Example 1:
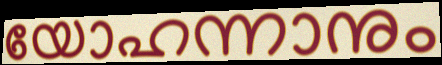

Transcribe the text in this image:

യോഹന്നാനും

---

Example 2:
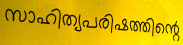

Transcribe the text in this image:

സാഹിത്യപരിഷത്തിന്റെ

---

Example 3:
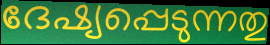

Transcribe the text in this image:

ദേഷ്യപ്പെടുന്നതു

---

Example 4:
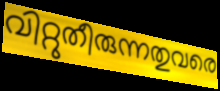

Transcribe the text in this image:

വിറ്റുതീരുന്നതുവരെ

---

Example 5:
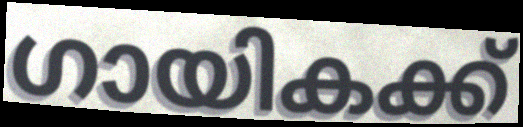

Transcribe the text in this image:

ഗായികക്ക്